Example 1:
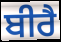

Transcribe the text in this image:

ਬੀਰੈ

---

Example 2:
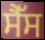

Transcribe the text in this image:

ਸੈੱਸ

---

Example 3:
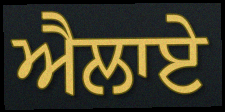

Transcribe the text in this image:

ਐਲਾਏ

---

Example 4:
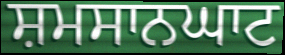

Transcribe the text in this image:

ਸ਼ਮਸਾਨਘਾਟ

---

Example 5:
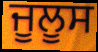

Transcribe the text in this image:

ਜੂਲੂਸ